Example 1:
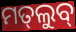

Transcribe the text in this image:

ମତ୍‌ଲୁବ୍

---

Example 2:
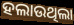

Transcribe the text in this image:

ହଲାଉଥିଲା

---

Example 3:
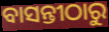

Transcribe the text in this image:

ବାସନ୍ତୀଠାରୁ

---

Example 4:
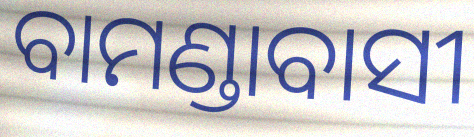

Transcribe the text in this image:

ବାମଣ୍ଡାବାସୀ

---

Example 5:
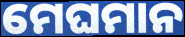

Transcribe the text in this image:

ମେଘମାନ